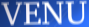
VENU